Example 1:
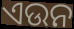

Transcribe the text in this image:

ଏଉନ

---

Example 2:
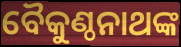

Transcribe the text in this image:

ବୈକୁଣ୍ଠନାଥଙ୍କ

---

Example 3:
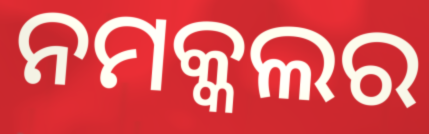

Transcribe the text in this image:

ନମକ୍କଲର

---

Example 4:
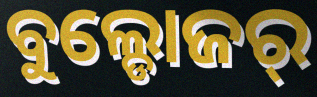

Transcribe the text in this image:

ବୁଲ୍ଡୋଜର୍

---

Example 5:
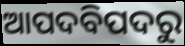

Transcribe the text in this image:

ଆପଦବିପଦରୁ